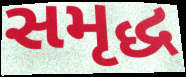
સમૃદ્ધ